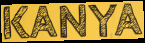
KANYA